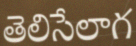
తెలిసేలాగ